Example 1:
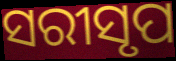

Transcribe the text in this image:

ସରୀସୃପ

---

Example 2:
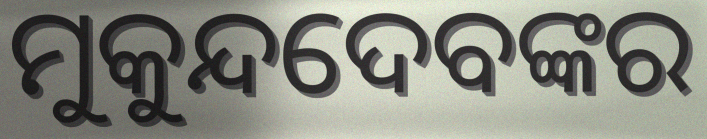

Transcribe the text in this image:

ମୁକୁନ୍ଦଦେବଙ୍କର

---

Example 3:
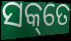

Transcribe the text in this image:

ସକ୍‌ତେ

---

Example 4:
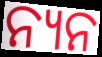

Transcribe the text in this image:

ନ୍ୟନ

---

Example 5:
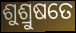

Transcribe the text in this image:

ଶୁଶ୍ରୁଷତେ